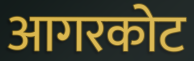
आगरकोट